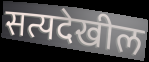
सत्यदेखील